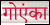
गोएंका